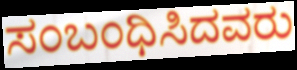
ಸಂಬಂಧಿಸಿದವರು